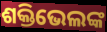
ଶକ୍ତିଭେଲଙ୍କ